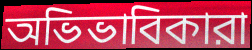
অভিভাবিকারা